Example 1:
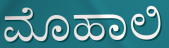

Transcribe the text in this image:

ಮೊಹಾಲಿ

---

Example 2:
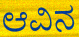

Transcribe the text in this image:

ಆವಿನ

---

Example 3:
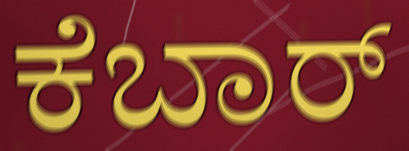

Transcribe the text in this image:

ಕೆಬಾರ್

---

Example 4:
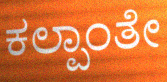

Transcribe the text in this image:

ಕಲ್ಪಾಂತೇ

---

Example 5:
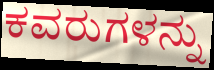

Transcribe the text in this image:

ಕವರುಗಳನ್ನು